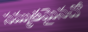
సమ్మతమైనచో